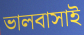
ভালবাসাই